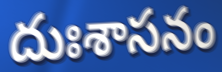
దుఃశాసనం